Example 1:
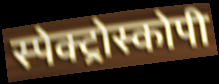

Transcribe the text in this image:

स्पेक्ट्रोस्कोपी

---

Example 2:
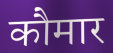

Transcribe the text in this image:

कौमार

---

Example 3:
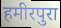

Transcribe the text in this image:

हमीरपुरा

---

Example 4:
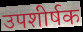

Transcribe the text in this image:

उपशीर्षक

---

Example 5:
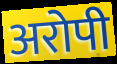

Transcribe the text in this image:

अरोपी